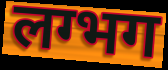
लग्भग